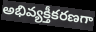
అభివ్యక్తీకరణగా